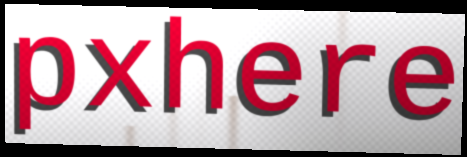
pxhere